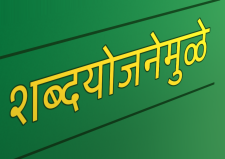
शब्दयोजनेमुळे